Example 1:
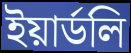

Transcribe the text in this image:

ইয়ার্ডলি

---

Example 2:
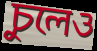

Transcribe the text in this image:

চুলেও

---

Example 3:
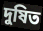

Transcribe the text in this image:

দুষিত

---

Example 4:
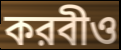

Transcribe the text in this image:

করবীও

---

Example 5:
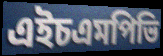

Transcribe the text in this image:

এইচএমপিভি